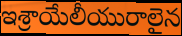
ఇశ్రాయేలీయురాలైన